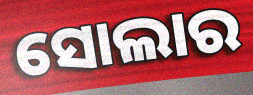
ସୋଲାର